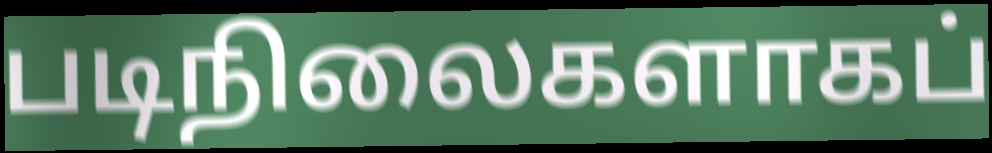
படிநிலைகளாகப்